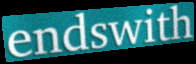
endswith